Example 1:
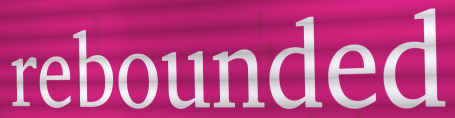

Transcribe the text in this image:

rebounded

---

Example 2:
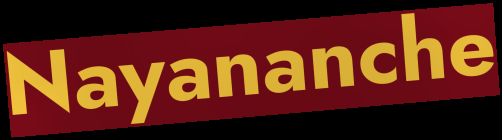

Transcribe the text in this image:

Nayananche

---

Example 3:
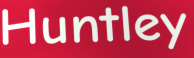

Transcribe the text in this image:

Huntley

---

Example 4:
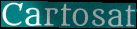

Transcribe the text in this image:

Cartosat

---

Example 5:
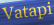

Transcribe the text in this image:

Vatapi